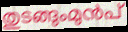
തുടങ്ങുംമുൻപ്